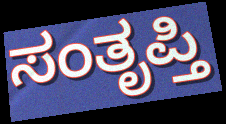
ಸಂತೃಪ್ತಿ